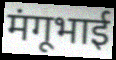
मंगूभाई